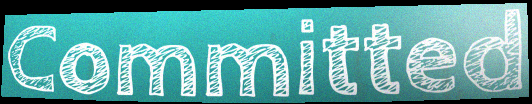
Committed